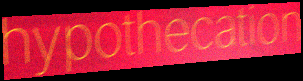
hypothecation